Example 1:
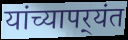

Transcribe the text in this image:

यांच्यापर्यंत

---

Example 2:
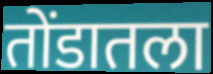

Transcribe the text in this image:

तोंडातला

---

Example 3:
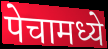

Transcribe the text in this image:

पेचामध्ये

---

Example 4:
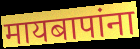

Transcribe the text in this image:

मायबापांना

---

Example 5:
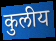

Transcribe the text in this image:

कुलीय